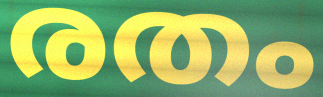
രതം